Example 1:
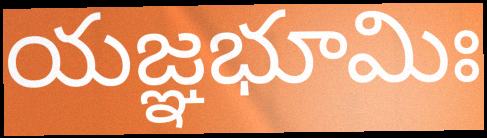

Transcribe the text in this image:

యజ్ఞభూమిః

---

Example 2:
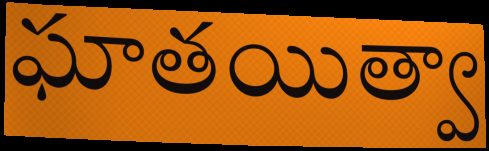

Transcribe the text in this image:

ఘాతయిత్వా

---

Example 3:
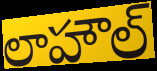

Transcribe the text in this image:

లాహౌల్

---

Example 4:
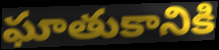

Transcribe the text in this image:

ఘాతుకానికి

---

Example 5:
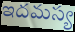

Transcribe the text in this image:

ఇదమస్య